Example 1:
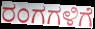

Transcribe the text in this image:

ರಂಗಗಳಿಗೆ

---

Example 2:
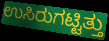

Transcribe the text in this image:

ಉಸಿರುಗಟ್ಟಿತ್ತು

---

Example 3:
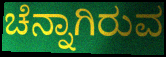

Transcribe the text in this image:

ಚೆನ್ನಾಗಿರುವ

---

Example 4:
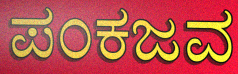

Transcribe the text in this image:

ಪಂಕಜವ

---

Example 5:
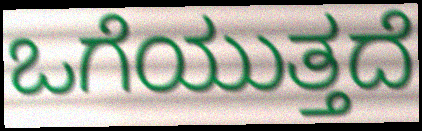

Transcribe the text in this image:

ಒಗೆಯುತ್ತದೆ